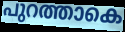
പുറത്താകെ